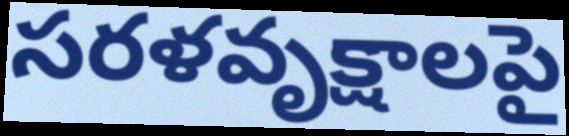
సరళవృక్షాలపై